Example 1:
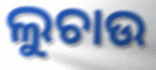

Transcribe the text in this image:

ଲୁଚାଉ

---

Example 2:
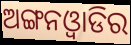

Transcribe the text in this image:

ଅଙ୍ଗନଓ୍ବାଡିର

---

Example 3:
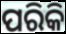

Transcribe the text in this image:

ପରିକି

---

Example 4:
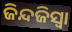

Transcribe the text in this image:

ଜିନ୍ଦଜିସ୍ୱା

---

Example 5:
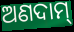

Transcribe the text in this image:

ଅଣଦାମ୍